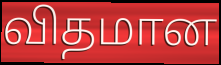
விதமான